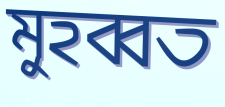
মুহব্বত